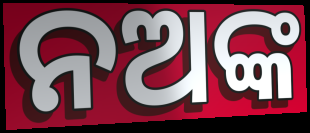
ନଅଙ୍କ